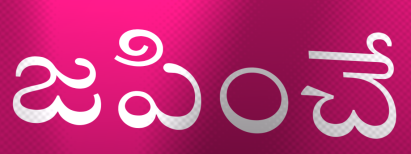
జపించే